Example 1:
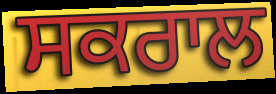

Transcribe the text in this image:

ਸਕਰਾਲ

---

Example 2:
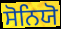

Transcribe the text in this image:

ਸੋਨਿਯੋ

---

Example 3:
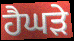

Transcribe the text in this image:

ਹੈਘੜੇ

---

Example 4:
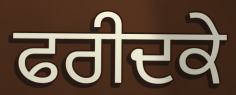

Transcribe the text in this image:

ਫਰੀਦਕੇ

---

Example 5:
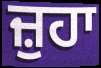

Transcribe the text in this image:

ਜ਼ੁਹਾ